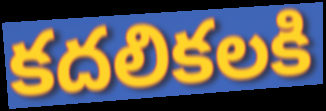
కదలికలకి